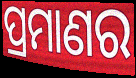
ପ୍ରମାଣର